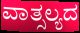
ವಾತ್ಸಲ್ಯದ